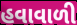
હવાવાળી